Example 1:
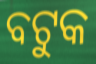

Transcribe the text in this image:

ବଟୁକ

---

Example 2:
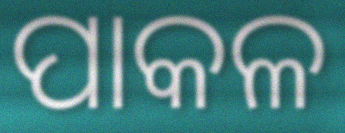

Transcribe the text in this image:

ପାକଳ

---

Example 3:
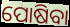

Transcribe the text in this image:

ପୋଷିବା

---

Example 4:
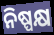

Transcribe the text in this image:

ନିଷ୍ପକ୍ଷ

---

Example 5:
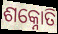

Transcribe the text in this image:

ଶକ୍ନୋତି